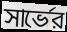
সার্ভের